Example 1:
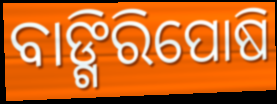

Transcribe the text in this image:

ବାଙ୍ଗିରିପୋଷି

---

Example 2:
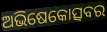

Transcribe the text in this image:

ଅଭିଷେକୋତ୍ସବର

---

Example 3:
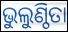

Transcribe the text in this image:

ଭୁଲୁଣ୍ଠିତା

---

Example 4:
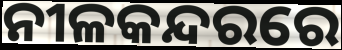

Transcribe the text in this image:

ନୀଳକନ୍ଦରରେ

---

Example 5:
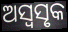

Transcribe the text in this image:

ଅସ୍ୱସୃକ